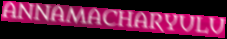
ANNAMACHARYULU